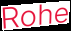
Rohe